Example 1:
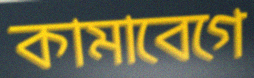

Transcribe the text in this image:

কামাবেগে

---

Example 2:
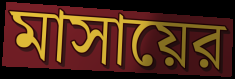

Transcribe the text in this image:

মাসায়ের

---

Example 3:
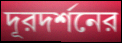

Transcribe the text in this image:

দূরদর্শনের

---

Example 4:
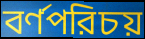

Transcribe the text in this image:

বর্ণপরিচয়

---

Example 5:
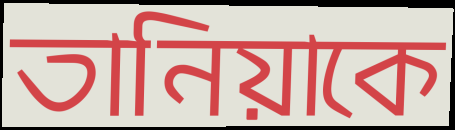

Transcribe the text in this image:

তানিয়াকে